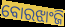
ବୋରଝାଂଜି